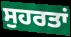
ਸੁਹਰਤਾਂ